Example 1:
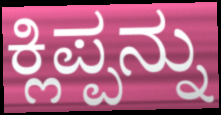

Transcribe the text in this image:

ಕ್ಲಿಪ್ಪನ್ನು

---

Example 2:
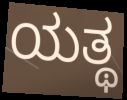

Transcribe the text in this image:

ಯತ್ಥ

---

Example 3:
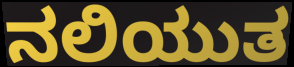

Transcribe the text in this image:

ನಲಿಯುತ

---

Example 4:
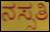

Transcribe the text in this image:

ನಸ್ಸತಿ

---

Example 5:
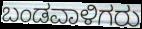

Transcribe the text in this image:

ಬಂಡವಾಳಿಗರು